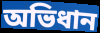
অভিধান